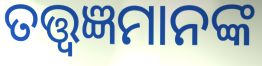
ତତ୍ତ୍ୱଜ୍ଞମାନଙ୍କ